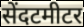
सेंदटमीटर